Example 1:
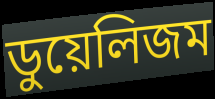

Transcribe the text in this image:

ডুয়েলিজম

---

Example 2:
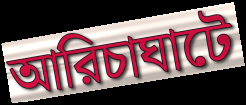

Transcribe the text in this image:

আরিচাঘাটে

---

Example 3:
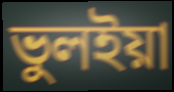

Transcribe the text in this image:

ভুলইয়া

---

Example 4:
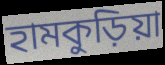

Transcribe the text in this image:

হামকুড়িয়া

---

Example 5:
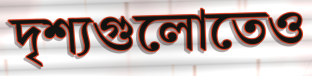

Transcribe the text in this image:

দৃশ্যগুলোতেও